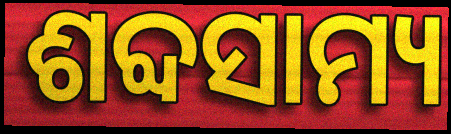
ଶବ୍ଦସାମ୍ୟ